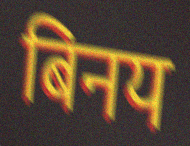
बिनय